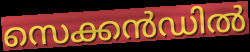
സെക്കൻഡിൽ